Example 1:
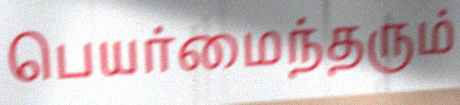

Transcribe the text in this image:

பெயர்மைந்தரும்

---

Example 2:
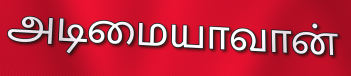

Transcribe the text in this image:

அடிமையாவான்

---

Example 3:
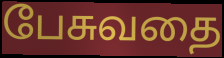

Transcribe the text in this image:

பேசுவதை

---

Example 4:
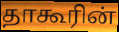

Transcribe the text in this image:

தாகூரின்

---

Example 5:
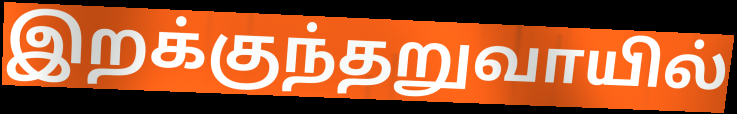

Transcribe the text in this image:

இறக்குந்தறுவாயில்